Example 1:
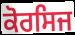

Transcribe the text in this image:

ਕੋਰਸਿਜ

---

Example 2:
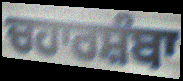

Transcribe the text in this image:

ਚਹਾਰਸ਼ੰਬਾ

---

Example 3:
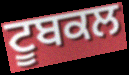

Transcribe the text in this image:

ਟੂਬਕਲ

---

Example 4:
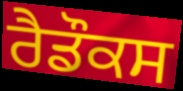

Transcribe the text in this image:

ਰੈਡੌਕਸ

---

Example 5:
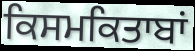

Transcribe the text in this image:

ਕਿਸਮਕਿਤਾਬਾਂ